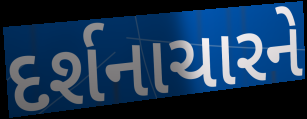
દર્શનાચારને